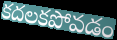
కదలకపోవడం